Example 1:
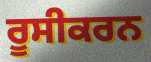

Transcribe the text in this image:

ਰੂਸੀਕਰਨ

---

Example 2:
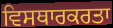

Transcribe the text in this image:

ਵਿਸਥਾਰਕਰਤਾ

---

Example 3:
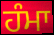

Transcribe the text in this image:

ਹੰਮਾ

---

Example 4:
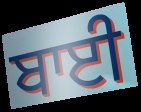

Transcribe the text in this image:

ਬਾਈ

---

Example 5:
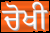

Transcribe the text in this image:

ਚੋਖੀ